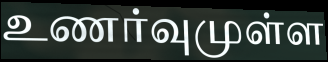
உணர்வுமுள்ள